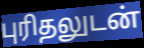
புரிதலுடன்